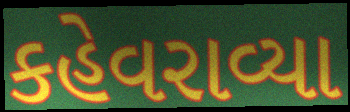
કહેવરાવ્યા